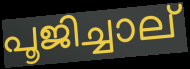
പൂജിച്ചാല്